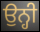
ਉਨ੍ਹੀ